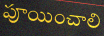
పూయించాలి